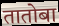
तातोबा